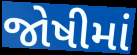
જોષીમાં